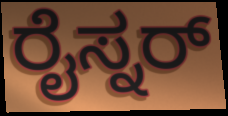
ರೈಸ್ನರ್